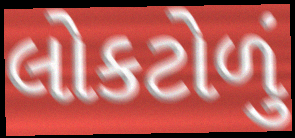
લોકટોળું